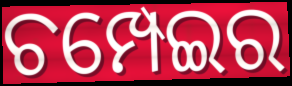
ଚମ୍ପେଇର